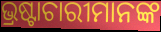
ଭ୍ରଷ୍ଟାଚାରୀମାନଙ୍କ